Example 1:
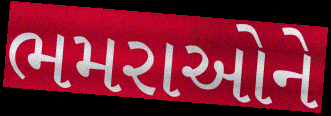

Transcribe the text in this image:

ભમરાઓને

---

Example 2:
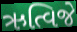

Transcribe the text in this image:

ઋત્વિજે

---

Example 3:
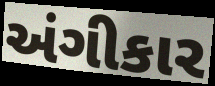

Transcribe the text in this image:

અંગીકાર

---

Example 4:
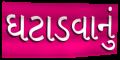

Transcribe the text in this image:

ઘટાડવાનું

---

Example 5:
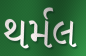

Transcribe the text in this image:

થર્મલ